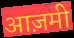
आज़मी